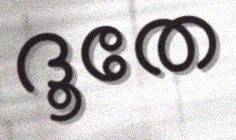
ദൂതേ